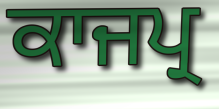
ਕਾਜਪ੍ਰ